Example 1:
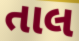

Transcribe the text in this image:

તાલ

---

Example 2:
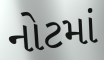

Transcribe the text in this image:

નોટમાં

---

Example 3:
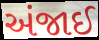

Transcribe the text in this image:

અંજાઈ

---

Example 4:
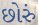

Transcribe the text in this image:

છોરું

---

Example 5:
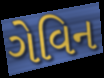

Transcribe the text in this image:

ગેવિન